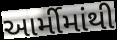
આર્મીમાંથી